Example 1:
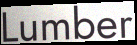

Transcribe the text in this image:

Lumber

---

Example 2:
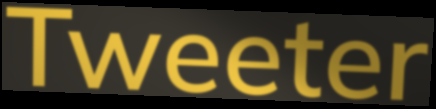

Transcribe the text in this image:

Tweeter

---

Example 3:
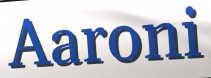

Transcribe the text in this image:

Aaroni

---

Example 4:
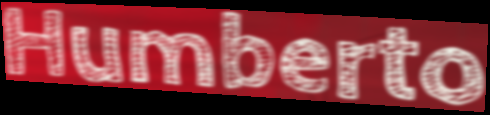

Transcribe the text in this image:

Humberto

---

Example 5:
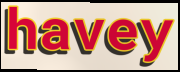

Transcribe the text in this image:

havey